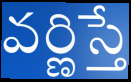
వర్ణిస్తే